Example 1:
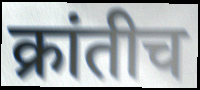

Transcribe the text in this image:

क्रांतीच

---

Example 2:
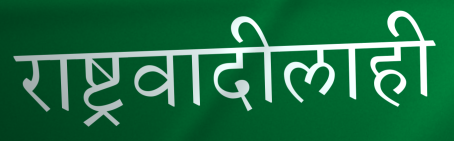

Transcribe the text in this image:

राष्ट्रवादीलाही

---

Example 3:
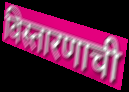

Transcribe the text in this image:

विस्तारणाची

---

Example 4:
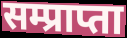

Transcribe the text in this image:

सम्प्राप्ता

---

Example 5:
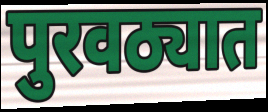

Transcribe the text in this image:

पुरवठ्यात